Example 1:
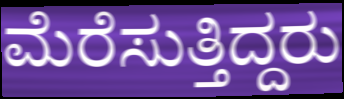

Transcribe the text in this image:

ಮೆರೆಸುತ್ತಿದ್ದರು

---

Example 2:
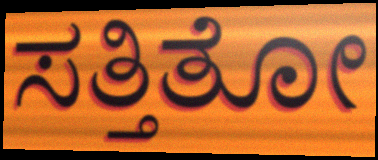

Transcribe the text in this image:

ಸತ್ತಿತೋ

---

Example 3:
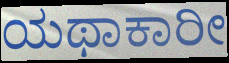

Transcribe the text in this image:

ಯಥಾಕಾರೀ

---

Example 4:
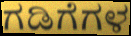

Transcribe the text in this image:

ಗಡಿಗೆಗಳ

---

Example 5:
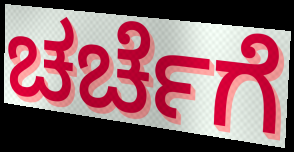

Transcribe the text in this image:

ಚರ್ಚೆಗೆ